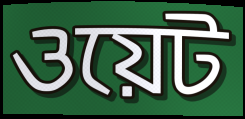
ওয়েট